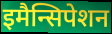
इमैन्सिपेशन